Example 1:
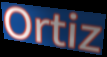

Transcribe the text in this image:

Ortiz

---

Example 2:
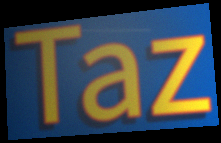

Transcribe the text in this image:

Taz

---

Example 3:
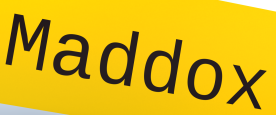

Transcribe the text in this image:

Maddox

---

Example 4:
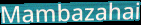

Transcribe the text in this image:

Mambazahai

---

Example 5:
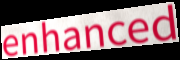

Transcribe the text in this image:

enhanced